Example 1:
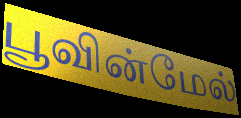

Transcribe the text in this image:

பூவின்மேல்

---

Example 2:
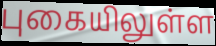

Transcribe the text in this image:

புகையிலுள்ள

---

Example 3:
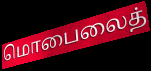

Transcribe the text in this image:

மொபைலைத்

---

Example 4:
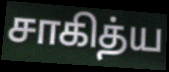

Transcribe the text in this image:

சாகித்ய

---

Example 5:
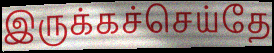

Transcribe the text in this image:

இருக்கச்செய்தே